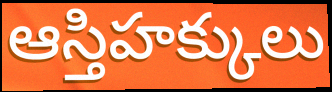
ఆస్తిహక్కులు